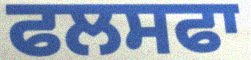
ਫਲਸਫਾ